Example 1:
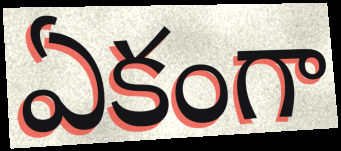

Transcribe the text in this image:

ఏకంగా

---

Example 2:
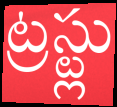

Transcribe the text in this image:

ట్రస్ట్లు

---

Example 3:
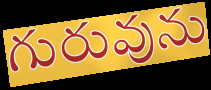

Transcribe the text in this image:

గురువును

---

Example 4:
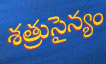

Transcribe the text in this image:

శత్రుసైన్యం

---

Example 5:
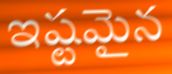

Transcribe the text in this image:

ఇష్టమైన